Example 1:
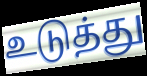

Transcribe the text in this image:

உடுத்து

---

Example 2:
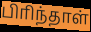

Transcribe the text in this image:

பிரிந்தாள்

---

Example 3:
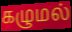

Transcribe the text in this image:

கழுமல்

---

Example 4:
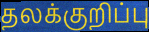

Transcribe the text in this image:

தலக்குறிப்பு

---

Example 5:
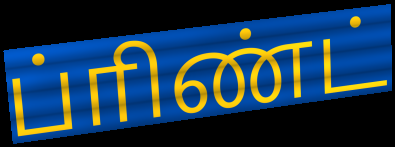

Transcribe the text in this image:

ப்ரிண்ட்